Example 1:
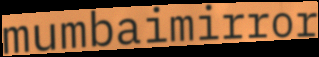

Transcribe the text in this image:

mumbaimirror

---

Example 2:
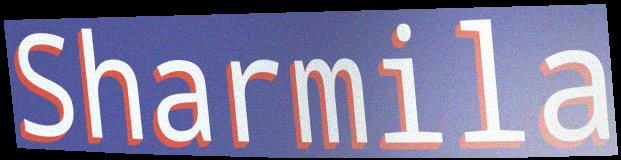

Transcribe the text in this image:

Sharmila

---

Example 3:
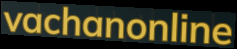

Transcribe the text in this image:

vachanonline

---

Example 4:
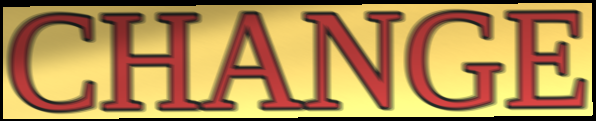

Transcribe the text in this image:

CHANGE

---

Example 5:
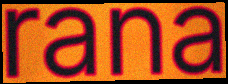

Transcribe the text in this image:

rana